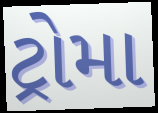
ટ્રોમા